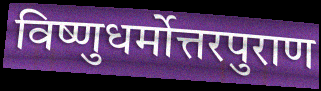
विष्णुधर्मोत्तरपुराण